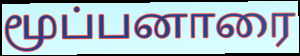
மூப்பனாரை